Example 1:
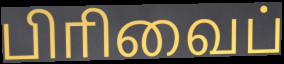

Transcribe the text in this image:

பிரிவைப்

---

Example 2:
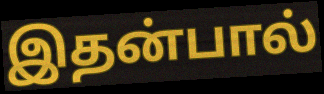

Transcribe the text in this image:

இதன்பால்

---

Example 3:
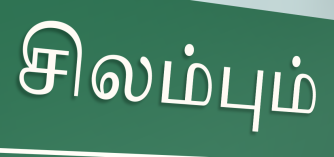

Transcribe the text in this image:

சிலம்பும்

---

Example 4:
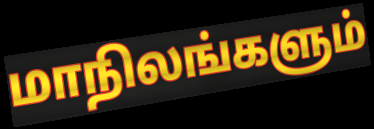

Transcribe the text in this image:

மாநிலங்களும்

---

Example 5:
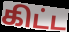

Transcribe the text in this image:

கிட்ட